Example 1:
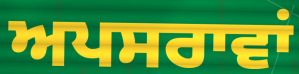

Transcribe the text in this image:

ਅਪਸਰਾਵਾਂ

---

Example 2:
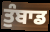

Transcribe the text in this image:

ਤੁੰਬਾਡ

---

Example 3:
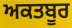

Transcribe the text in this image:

ਅਕਤਬੂਰ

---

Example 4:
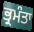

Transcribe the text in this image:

ਭ੍ਰਮੰਤਾ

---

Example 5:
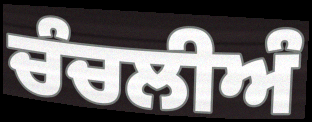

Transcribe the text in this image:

ਚੰਚਲੀਅੰ